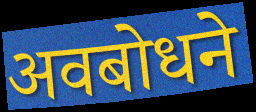
अवबोधने